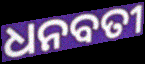
ଧନବତୀ